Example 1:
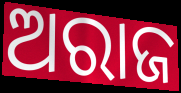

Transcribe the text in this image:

ଅରାଜ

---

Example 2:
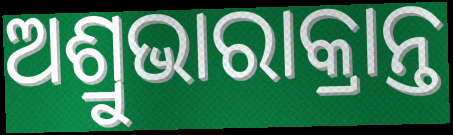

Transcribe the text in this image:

ଅଶ୍ରୁଭାରାକ୍ରାନ୍ତ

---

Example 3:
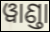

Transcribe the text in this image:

ୱାଣ୍ଡା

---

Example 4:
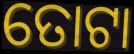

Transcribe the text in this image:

ତୋଟା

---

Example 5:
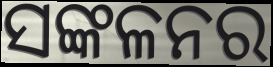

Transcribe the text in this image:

ସଙ୍କଳନର